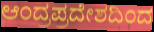
ಆಂದ್ರಪ್ರದೇಶದಿಂದ